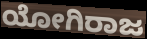
ಯೋಗಿರಾಜ